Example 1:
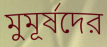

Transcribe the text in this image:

মুমূর্ষদের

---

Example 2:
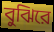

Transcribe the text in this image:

বুঝিরে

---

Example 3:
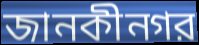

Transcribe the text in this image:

জানকীনগর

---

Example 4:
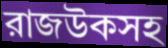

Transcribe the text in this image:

রাজউকসহ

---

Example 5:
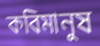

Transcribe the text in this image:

কবিমানুষ